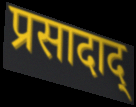
प्रसादाद्